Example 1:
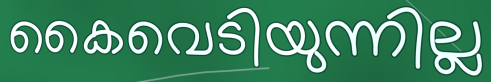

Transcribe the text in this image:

കൈവെടിയുന്നില്ല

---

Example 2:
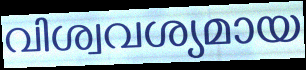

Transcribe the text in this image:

വിശ്വവശ്യമായ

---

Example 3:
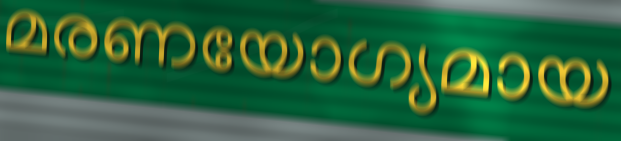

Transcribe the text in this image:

മരണയോഗ്യമായ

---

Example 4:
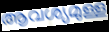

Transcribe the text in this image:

ആവശ്യമുള്ള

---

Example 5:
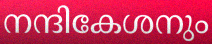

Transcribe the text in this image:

നന്ദികേശനും